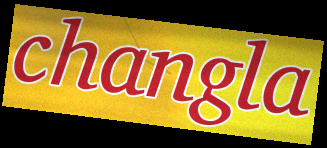
changla